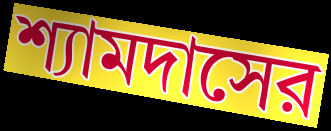
শ্যামদাসের